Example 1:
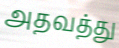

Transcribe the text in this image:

அதவத்து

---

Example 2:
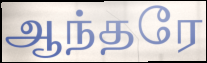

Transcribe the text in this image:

ஆந்தரே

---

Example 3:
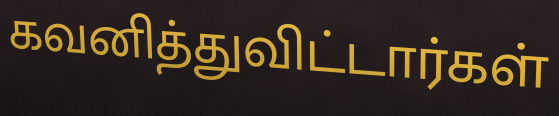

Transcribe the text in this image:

கவனித்துவிட்டார்கள்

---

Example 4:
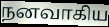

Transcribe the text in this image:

நனவாகிய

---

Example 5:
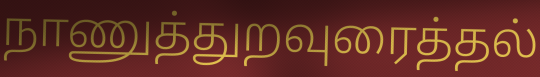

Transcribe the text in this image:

நாணுத்துறவுரைத்தல்